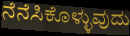
ನೆನೆಸಿಕೊಳ್ಳುವುದು